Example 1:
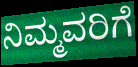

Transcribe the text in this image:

ನಿಮ್ಮವರಿಗೆ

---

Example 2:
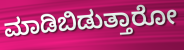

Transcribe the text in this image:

ಮಾಡಿಬಿಡುತ್ತಾರೋ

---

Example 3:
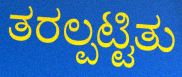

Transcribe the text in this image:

ತರಲ್ಪಟ್ಟಿತು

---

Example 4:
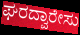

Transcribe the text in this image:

ಘರದ್ವಾರೇಸು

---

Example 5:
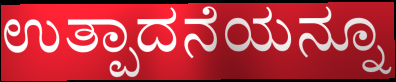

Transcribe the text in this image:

ಉತ್ಪಾದನೆಯನ್ನೂ